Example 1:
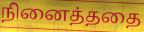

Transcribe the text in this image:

நினைத்ததை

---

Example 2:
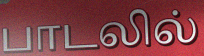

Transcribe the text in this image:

பாடலில்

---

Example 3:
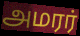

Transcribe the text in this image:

அமரர்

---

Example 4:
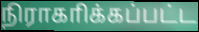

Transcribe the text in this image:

நிராகரிக்கப்பட்ட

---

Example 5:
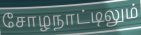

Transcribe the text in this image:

சோழநாட்டிலும்